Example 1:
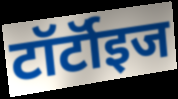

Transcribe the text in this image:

टॉर्टॉइज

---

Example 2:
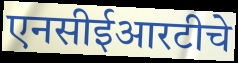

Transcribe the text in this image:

एनसीईआरटीचे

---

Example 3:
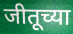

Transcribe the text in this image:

जीतूच्या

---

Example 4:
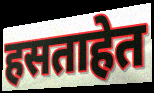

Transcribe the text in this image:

हसताहेत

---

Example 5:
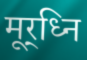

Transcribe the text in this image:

मूर्ध्नि